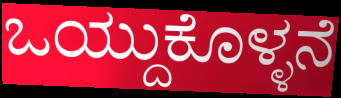
ಒಯ್ದುಕೊಳ್ಳನೆ